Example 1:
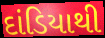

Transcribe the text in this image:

દાંડિયાથી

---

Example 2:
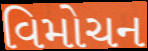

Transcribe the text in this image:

વિમોચન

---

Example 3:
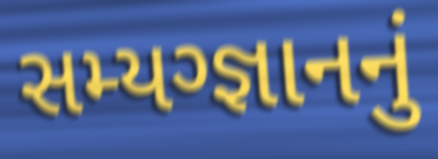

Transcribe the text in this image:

સમ્યગ્જ્ઞાનનું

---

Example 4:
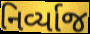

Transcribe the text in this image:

નિર્વ્યાજ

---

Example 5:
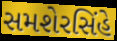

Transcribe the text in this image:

સમશેરસિંહે